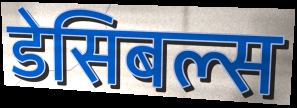
डेसिबल्स